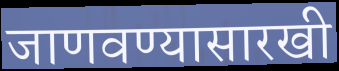
जाणवण्यासारखी